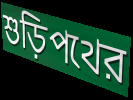
শুড়িপথের